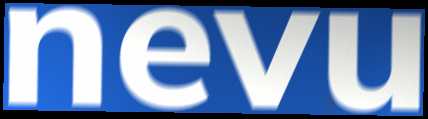
nevu